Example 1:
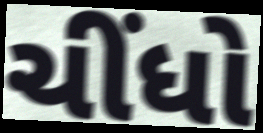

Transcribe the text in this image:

ચીંધો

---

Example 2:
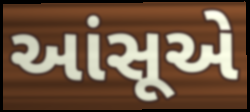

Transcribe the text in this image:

આંસૂએ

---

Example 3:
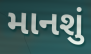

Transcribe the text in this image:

માનશું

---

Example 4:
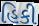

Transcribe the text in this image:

હિકી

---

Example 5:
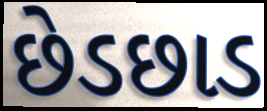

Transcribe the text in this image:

છેડછાડ